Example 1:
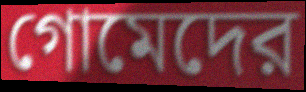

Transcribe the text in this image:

গোমেদের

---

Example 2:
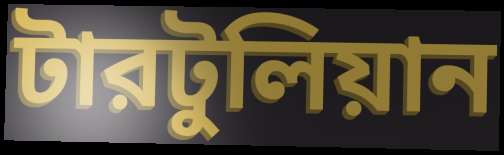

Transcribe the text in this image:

টারটুলিয়ান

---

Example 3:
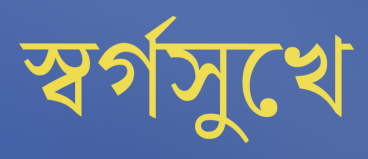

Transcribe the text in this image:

স্বর্গসুখে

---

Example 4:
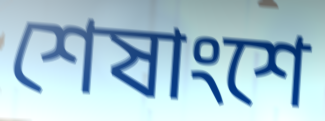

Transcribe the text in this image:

শেষাংশে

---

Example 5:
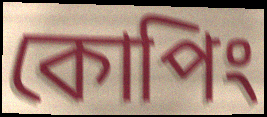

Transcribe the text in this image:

কোপিং